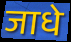
जाधे